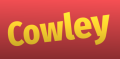
Cowley